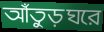
আঁতুড়ঘরে